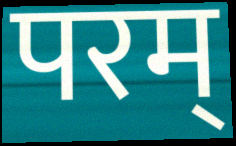
परम्